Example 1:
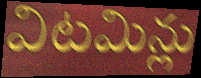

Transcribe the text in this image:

విటమిన్లు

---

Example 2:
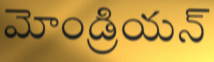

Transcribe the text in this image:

మోండ్రియన్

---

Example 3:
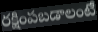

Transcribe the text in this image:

రక్షింపబడాలంటే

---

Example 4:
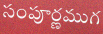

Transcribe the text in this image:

సంపూర్ణముగ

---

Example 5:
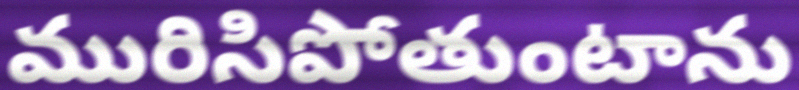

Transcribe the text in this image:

మురిసిపోతుంటాను